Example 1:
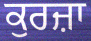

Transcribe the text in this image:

ਕੁਰਜ਼ਾ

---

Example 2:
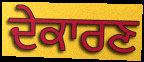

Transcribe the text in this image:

ਦੇਕਾਰਣ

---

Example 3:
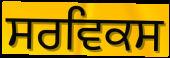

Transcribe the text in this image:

ਸਰਵਿਕਸ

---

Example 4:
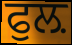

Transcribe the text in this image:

ਫੁਲ਼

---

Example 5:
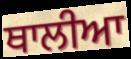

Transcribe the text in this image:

ਥਾਲੀਆ